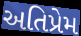
અતિપ્રેમ